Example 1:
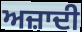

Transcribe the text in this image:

ਅਜ਼ਾਦੀ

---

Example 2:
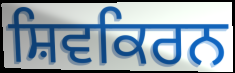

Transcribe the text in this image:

ਸ਼ਿਵਕਿਰਨ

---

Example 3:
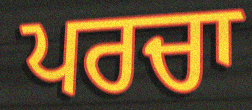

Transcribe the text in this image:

ਪਰਚਾ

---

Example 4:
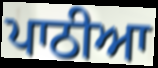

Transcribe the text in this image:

ਪਾਠੀਆ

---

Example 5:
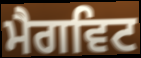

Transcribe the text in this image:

ਮੈਗਵਿਟ